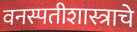
वनस्पतीशास्त्राचे